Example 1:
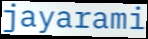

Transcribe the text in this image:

jayarami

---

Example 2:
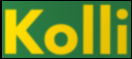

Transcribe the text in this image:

Kolli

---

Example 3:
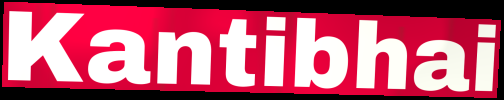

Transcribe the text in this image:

Kantibhai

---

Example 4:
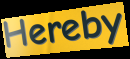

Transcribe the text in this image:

Hereby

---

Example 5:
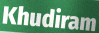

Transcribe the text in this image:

Khudiram